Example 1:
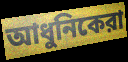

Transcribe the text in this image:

আধুনিকেরা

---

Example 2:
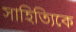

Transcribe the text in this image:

সাহিত্যিকে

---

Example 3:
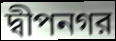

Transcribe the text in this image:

দ্বীপনগর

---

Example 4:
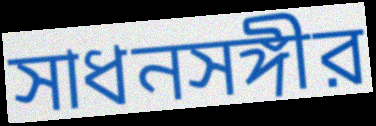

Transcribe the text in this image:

সাধনসঙ্গীর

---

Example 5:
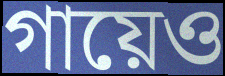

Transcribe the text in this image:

গায়েও